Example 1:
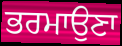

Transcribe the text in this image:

ਭਰਮਾਉਣਾ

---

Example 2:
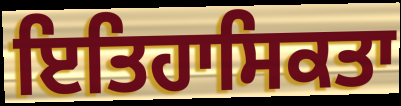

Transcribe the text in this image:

ਇਤਿਹਾਸਿਕਤਾ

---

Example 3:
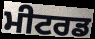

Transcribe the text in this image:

ਮੀਟਰਡ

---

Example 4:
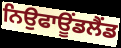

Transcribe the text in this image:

ਨਿਉਫਾਊਂਡਲੈਂਡ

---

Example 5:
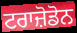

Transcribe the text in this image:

ਟਰਾਜ਼ੋਡੋਨ